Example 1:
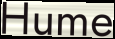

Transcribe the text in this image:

Hume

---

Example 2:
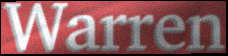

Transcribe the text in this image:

Warren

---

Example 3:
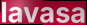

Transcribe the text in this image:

lavasa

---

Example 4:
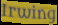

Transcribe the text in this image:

Irwing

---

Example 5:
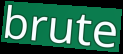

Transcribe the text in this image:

brute